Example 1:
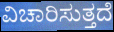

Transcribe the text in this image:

ವಿಚಾರಿಸುತ್ತದೆ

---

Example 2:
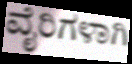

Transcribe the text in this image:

ವೈರಿಗಳಾಗಿ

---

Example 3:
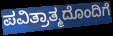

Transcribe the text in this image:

ಪವಿತ್ರಾತ್ಮದೊಂದಿಗೆ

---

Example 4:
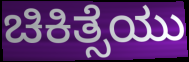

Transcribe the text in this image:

ಚಿಕಿತ್ಸೆಯು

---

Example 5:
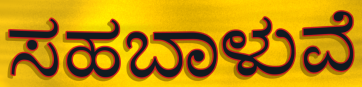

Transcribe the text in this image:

ಸಹಬಾಳುವೆ